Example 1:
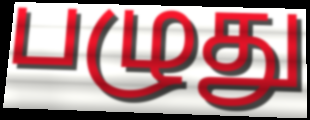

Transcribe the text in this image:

பழுது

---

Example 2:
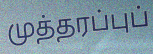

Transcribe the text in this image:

முத்தரப்புப்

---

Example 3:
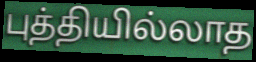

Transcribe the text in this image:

புத்தியில்லாத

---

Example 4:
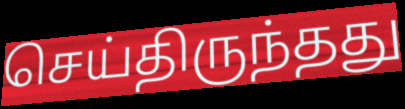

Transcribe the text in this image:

செய்திருந்தது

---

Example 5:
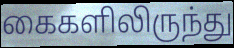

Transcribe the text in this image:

கைகளிலிருந்து